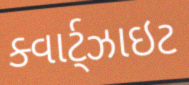
ક્વાર્ટ્ઝાઇટ